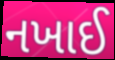
નખાઈ